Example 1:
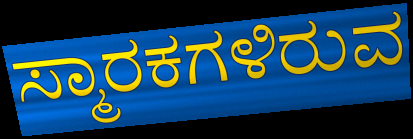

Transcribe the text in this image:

ಸ್ಮಾರಕಗಳಿರುವ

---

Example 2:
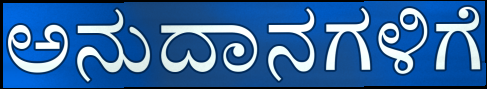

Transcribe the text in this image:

ಅನುದಾನಗಳಿಗೆ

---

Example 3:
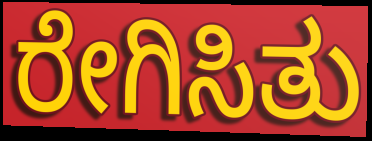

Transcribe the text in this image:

ರೇಗಿಸಿತು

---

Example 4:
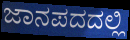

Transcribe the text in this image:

ಜಾನಪದದಲ್ಲಿ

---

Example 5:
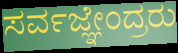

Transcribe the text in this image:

ಸರ್ವಜ್ಞೇಂದ್ರರು